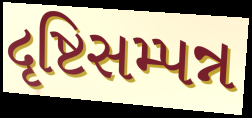
દૃષ્ટિસમ્પન્ન